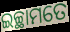
ଇଚ୍ଛାମତେ